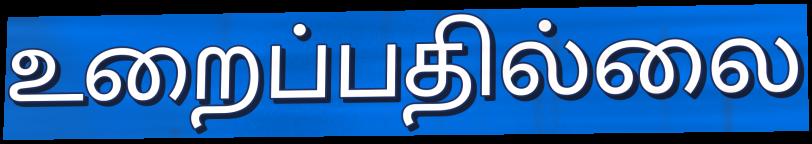
உறைப்பதில்லை